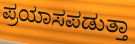
ಪ್ರಯಾಸಪಡುತ್ತಾ